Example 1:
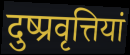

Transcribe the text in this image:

दुष्प्रवृत्तियां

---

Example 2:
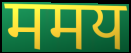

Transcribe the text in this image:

ममय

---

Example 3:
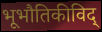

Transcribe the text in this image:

भूभौतिकीविद्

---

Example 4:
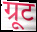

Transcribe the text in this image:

ग्रूट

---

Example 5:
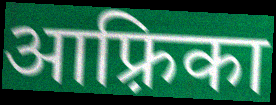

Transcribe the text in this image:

आफ़्रिका